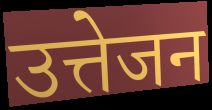
उत्तेजन